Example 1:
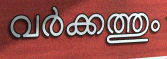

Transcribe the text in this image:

വർക്കത്തും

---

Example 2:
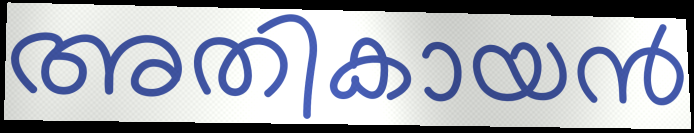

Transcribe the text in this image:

അതികായൻ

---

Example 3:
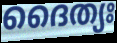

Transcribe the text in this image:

ദൈത്യഃ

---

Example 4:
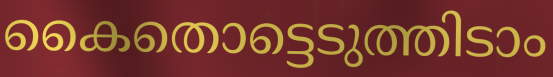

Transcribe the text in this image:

കൈതൊട്ടെടുത്തിടാം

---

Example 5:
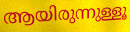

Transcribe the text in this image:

ആയിരുന്നുള്ളൂ